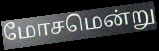
மோசமென்று